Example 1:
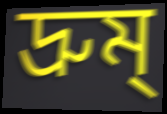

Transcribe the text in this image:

দ্রুম্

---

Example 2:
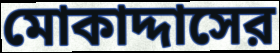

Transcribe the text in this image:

মোকাদ্দাসের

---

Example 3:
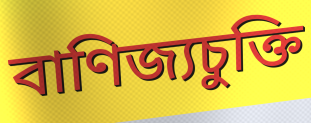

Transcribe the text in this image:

বাণিজ্যচুক্তি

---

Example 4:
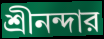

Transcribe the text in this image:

শ্রীনন্দার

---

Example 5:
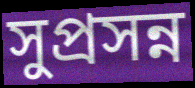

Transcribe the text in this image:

সুপ্রসন্ন